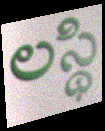
లస్థి